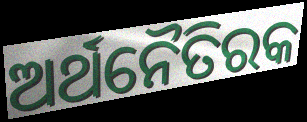
ଅର୍ଥନୈତିରକ